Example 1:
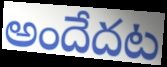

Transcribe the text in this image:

అందేదట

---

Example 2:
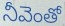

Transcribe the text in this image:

నీవెంతో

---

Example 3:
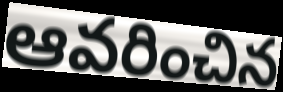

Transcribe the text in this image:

ఆవరించిన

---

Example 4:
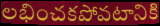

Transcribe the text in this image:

లభించకపోవటానికి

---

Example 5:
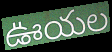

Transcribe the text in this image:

ఊయల